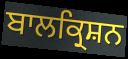
ਬਾਲਕ੍ਰਿਸ਼ਨ